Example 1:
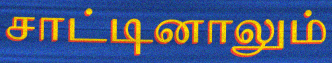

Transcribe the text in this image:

சாட்டினாலும்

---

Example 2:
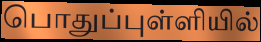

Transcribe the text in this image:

பொதுப்புள்ளியில்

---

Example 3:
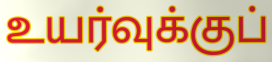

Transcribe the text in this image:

உயர்வுக்குப்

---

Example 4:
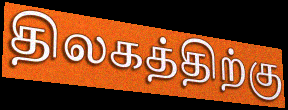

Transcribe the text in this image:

திலகத்திற்கு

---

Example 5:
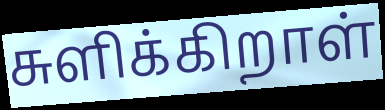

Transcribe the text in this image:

சுளிக்கிறாள்